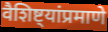
वैशिष्ट्यांप्रमाणे